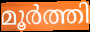
മൂർത്തി